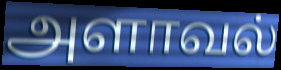
அளாவல்